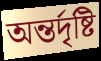
অন্তর্দৃষ্টি